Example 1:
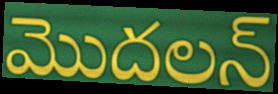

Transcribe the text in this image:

మొదలన్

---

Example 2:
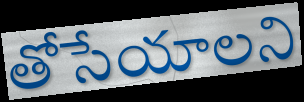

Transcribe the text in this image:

తోసేయాలని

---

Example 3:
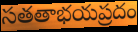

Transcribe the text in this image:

సతతాభయప్రదం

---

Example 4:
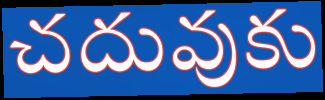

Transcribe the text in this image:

చదువుకు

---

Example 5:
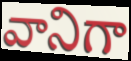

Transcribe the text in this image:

వానిగా